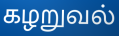
கழறுவல்